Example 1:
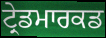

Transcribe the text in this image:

ਟ੍ਰੇਡਮਾਰਕਡ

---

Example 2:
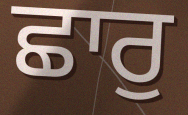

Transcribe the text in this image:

ਛਾਰੁ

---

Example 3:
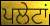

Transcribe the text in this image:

ਪਲੇਟਾਂ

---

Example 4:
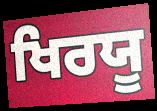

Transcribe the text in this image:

ਖਿਰਯੂ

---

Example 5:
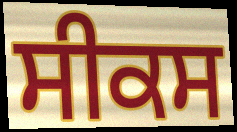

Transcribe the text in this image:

ਸੀਕਸ